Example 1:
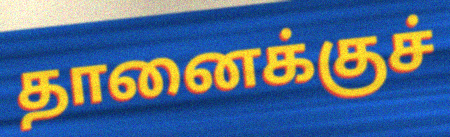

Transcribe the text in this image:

தானைக்குச்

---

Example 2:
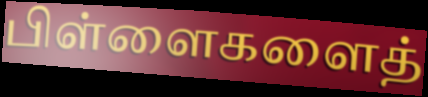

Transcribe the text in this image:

பிள்ளைகளைத்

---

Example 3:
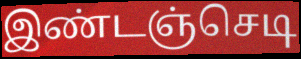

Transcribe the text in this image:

இண்டஞ்செடி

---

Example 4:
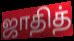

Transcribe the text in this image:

ஜாதித்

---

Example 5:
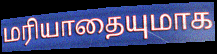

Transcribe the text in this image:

மரியாதையுமாக